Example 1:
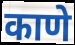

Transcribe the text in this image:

काणे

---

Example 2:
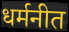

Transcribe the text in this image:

धर्मनीत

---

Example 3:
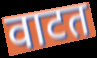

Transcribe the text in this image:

वाटत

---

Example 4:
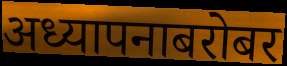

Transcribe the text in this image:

अध्यापनाबरोबर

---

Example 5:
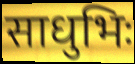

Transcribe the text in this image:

साधुभिः